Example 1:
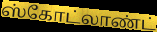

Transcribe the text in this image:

ஸ்கோட்லாண்ட்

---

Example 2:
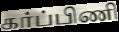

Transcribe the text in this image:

கர்ப்பிணி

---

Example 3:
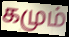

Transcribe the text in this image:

கமும்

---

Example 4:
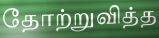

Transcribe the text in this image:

தோற்றுவித்த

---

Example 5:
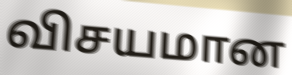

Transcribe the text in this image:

விசயமான